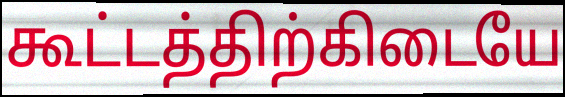
கூட்டத்திற்கிடையே